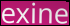
exine